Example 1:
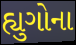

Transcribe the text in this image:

હ્યુગોના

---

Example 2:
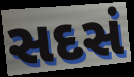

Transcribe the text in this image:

સદસં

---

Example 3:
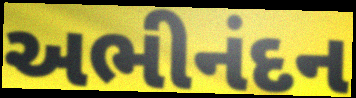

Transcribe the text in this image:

અભીનંદન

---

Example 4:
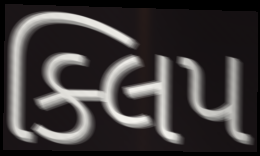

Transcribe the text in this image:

ક્લિપ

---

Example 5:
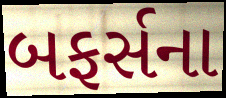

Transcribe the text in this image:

બફર્સના